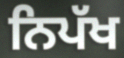
ਨਿਪੱਖ